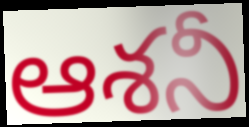
ఆశనీ